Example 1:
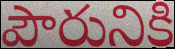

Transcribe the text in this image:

పౌరునికి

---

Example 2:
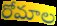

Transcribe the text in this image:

రోమాల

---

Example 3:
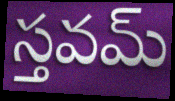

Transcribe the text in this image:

స్తవమ్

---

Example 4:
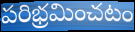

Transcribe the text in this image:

పరిభ్రమించటం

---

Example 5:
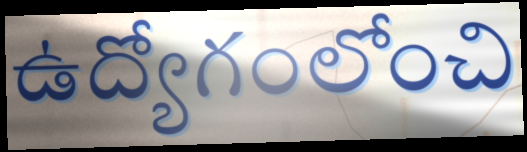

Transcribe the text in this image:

ఉద్యోగంలోంచి